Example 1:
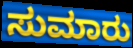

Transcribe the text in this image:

ಸುಮಾರು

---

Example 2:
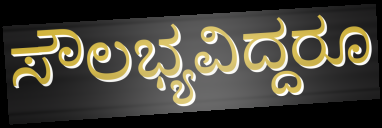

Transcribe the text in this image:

ಸೌಲಭ್ಯವಿದ್ದರೂ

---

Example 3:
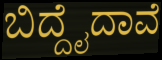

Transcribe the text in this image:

ಬಿದ್ದೈದಾವೆ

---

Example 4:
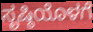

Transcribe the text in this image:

ಸೃಷ್ಠಿಯೊಳಗೆ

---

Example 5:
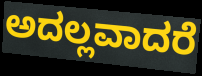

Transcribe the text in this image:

ಅದಲ್ಲವಾದರೆ